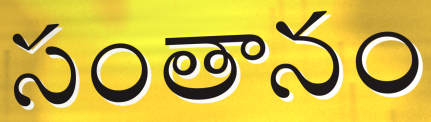
సంతానం